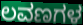
ಲವಣಗಳ